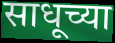
साधूच्या